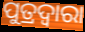
ପୁତ୍ରଦ୍ୱାରା